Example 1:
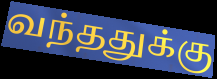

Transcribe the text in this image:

வந்ததுக்கு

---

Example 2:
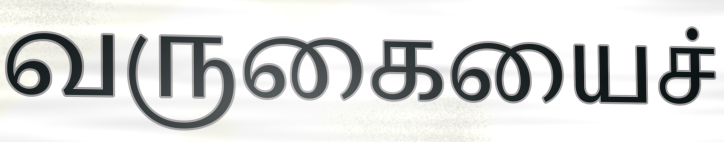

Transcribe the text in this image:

வருகையைச்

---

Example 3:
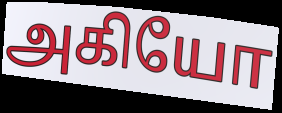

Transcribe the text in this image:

அகியோ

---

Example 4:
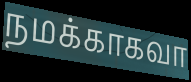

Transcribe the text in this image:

நமக்காகவா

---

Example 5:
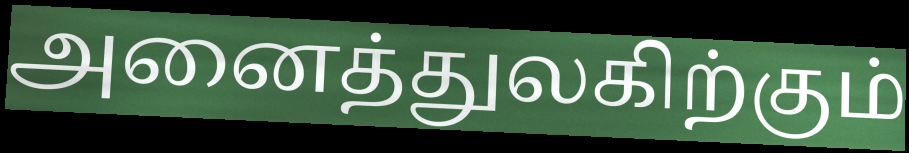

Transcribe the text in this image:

அனைத்துலகிற்கும்